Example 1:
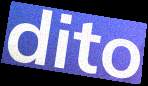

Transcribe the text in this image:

dito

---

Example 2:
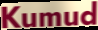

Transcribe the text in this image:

Kumud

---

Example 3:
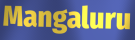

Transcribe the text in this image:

Mangaluru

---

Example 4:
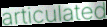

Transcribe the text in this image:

articulated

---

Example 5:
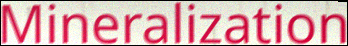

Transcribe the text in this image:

Mineralization